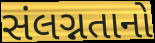
સંલગ્નતાનો